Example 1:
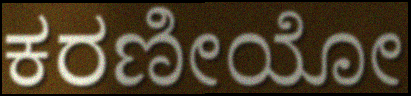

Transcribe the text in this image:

ಕರಣೀಯೋ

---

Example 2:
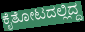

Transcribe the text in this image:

ಕೈತೋಟದಲ್ಲಿದ್ದ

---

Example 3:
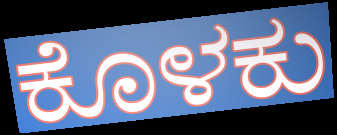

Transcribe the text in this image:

ಕೊಳಕು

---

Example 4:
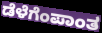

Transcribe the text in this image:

ಡೆಳೆಗೆಂಪಾಂತ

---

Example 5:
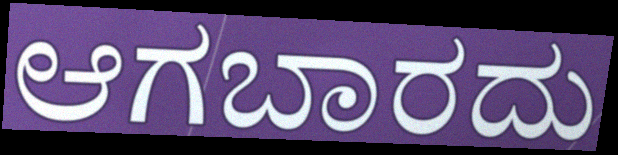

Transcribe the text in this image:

ಆಗಬಾರದು